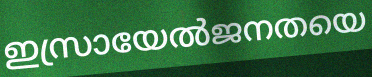
ഇസ്രായേൽജനതയെ